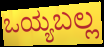
ಒಯ್ಯಬಲ್ಲ